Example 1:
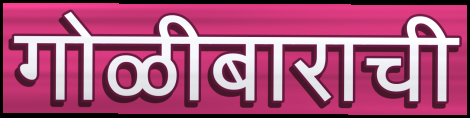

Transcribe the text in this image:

गोळीबाराची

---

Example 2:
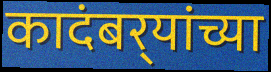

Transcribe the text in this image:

कादंबर्‍यांच्या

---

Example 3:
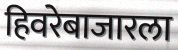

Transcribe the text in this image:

हिवरेबाजारला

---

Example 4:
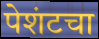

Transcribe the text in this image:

पेशंटचा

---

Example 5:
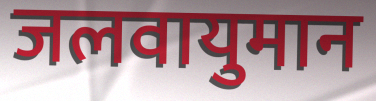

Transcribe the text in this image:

जलवायुमान